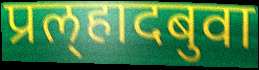
प्रल्हादबुवा